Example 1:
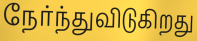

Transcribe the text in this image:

நேர்ந்துவிடுகிறது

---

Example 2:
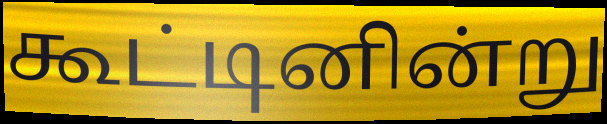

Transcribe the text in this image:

கூட்டினின்று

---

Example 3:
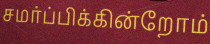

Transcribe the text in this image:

சமர்ப்பிக்கின்றோம்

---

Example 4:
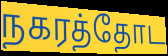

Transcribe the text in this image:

நகரத்தோட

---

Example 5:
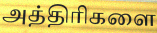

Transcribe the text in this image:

அத்திரிகளை